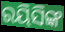
ରୟିସିଙ୍କ